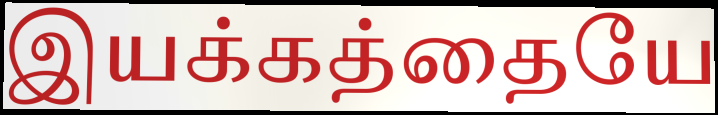
இயக்கத்தையே